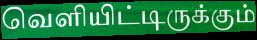
வெளியிட்டிருக்கும்